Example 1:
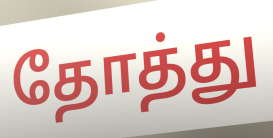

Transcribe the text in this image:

தோத்து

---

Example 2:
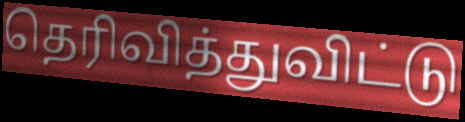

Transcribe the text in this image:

தெரிவித்துவிட்டு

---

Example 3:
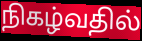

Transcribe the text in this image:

நிகழ்வதில்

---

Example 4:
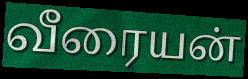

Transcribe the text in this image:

வீரையன்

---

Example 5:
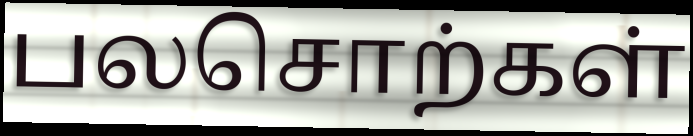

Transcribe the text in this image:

பலசொற்கள்